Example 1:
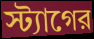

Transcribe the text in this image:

স্ট্যাগের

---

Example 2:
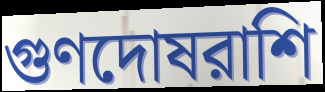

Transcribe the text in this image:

গুণদোষরাশি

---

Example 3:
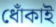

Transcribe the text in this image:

ধোঁকাই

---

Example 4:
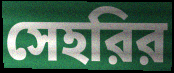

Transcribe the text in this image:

সেহরির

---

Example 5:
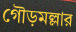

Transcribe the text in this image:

গৌড়মল্লার